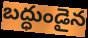
బద్ధుండైన